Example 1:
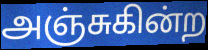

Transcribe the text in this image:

அஞ்சுகின்ற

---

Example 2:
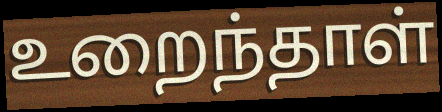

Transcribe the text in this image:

உறைந்தாள்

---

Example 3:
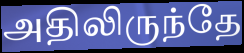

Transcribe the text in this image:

அதிலிருந்தே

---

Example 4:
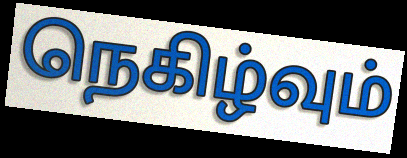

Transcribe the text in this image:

நெகிழ்வும்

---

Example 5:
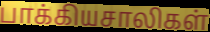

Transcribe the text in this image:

பாக்கியசாலிகள்